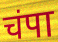
चंपा